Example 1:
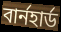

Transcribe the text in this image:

বার্নহার্ড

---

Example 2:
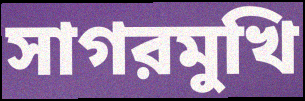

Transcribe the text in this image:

সাগরমুখি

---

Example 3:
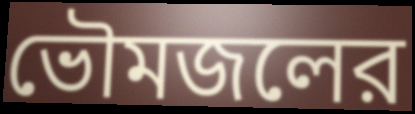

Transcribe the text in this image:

ভৌমজলের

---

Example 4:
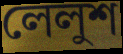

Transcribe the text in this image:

লেলুশ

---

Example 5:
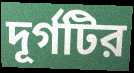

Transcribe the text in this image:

দূর্গটির